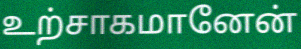
உற்சாகமானேன்